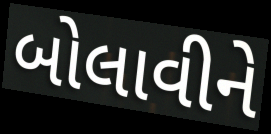
બોલાવીને